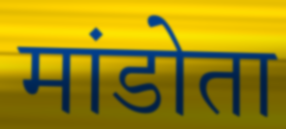
मांडोता